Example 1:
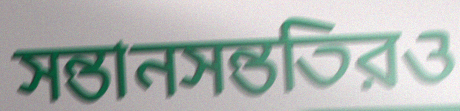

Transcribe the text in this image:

সন্তানসন্ততিরও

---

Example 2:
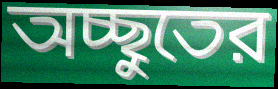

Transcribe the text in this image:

অচ্ছুতের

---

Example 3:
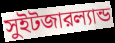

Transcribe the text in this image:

সুইটজারল্যান্ড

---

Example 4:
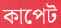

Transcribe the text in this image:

কাপেট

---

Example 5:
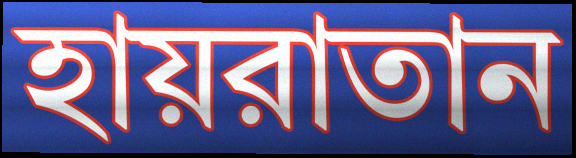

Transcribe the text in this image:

হায়রাতান